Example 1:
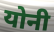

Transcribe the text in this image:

योनी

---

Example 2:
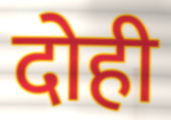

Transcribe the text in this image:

दोही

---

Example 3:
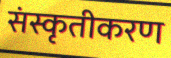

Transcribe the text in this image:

संस्कृतीकरण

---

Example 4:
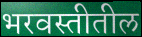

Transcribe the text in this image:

भरवस्तीतील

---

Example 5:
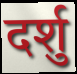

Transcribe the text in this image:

दर्शु